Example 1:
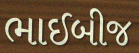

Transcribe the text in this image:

ભાઈબીજ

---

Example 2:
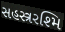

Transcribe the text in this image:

સહસ્ત્રરશ્મિ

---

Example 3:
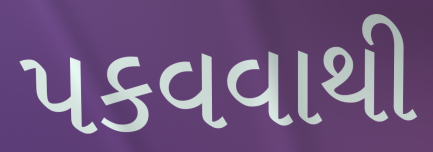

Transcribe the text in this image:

પકવવાથી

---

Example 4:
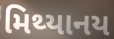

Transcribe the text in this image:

મિથ્યાનય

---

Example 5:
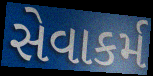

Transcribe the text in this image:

સેવાકર્મ